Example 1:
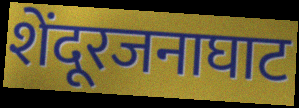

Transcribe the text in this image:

शेंदूरजनाघाट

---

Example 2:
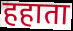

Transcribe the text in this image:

हहाता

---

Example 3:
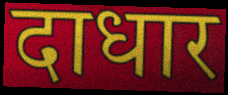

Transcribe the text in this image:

दाधार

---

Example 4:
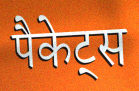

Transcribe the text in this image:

पैकेट्स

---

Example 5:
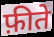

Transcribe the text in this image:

फ़ीते